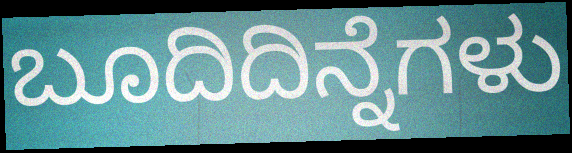
ಬೂದಿದಿನ್ನೆಗಳು